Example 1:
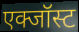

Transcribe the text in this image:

एक्जॉस्ट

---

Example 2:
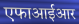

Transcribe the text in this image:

एफाआईआर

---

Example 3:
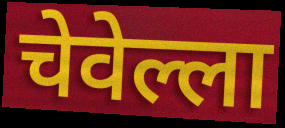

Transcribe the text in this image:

चेवेल्ला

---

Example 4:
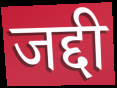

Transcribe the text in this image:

जद्दी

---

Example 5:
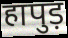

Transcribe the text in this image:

हापुड़